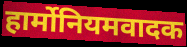
हार्मोनियमवादक